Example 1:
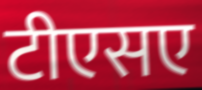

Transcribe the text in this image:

टीएसए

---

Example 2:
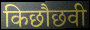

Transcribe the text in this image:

किछौछवी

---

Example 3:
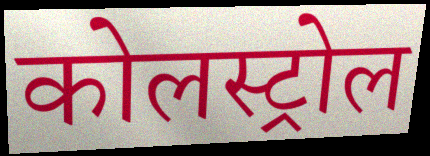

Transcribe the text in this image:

कोलस्ट्रोल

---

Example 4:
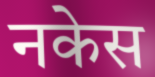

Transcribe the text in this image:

नकेस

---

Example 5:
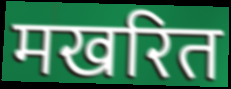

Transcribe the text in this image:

मखरित